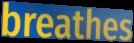
breathes